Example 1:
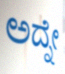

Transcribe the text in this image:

ಅದ್ನೇ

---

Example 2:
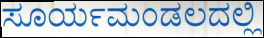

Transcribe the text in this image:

ಸೂರ್ಯಮಂಡಲದಲ್ಲಿ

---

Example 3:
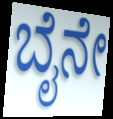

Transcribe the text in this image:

ಬೈನೇ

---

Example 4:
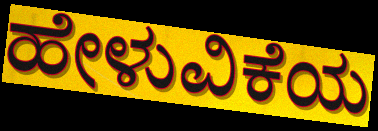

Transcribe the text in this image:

ಹೇಳುವಿಕೆಯ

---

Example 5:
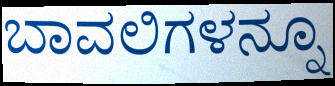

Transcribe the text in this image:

ಬಾವಲಿಗಳನ್ನೂ